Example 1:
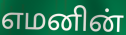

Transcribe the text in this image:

எமனின்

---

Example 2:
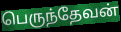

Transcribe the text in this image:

பெருந்தேவன்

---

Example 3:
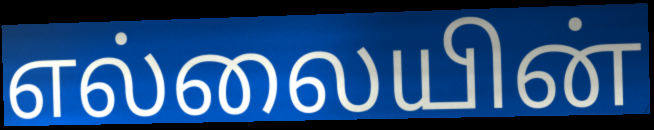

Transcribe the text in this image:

எல்லையின்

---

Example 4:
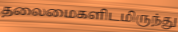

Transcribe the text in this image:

தலைமைகளிடமிருந்து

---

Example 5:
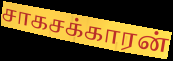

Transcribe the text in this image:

சாகசக்காரன்